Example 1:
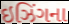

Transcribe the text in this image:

ઇઝિંગના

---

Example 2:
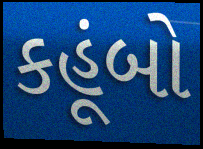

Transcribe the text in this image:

કહૂંબો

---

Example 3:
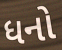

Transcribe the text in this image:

ધનો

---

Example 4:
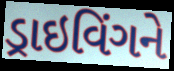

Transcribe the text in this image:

ડ્રાઇવિંગને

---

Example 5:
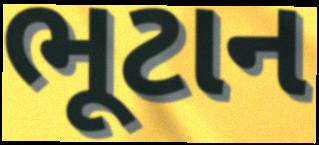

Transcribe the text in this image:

ભૂટાન